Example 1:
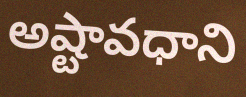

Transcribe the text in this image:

అష్టావధాని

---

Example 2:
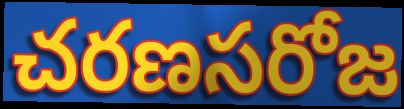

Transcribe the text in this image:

చరణసరోజ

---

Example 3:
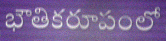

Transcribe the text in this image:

భౌతికరూపంలో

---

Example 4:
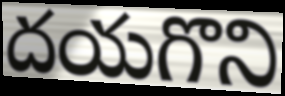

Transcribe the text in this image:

దయగొని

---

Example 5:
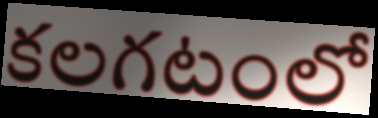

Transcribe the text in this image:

కలగటంలో